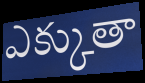
ఎక్కుతా